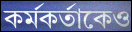
কর্মকর্তাকেও